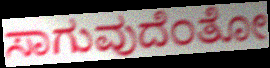
ಸಾಗುವುದೆಂತೋ